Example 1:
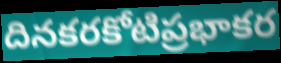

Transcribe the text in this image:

దినకరకోటిప్రభాకర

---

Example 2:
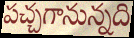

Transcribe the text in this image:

పచ్చగానున్నది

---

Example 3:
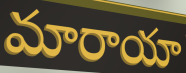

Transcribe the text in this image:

మారాయా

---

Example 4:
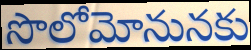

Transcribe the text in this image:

సొలోమోనునకు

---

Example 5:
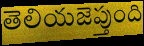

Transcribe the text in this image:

తెలియజెప్తుంది